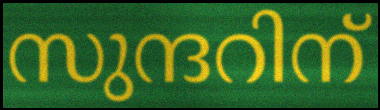
സുന്ദറിന്